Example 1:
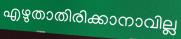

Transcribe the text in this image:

എഴുതാതിരിക്കാനാവില്ല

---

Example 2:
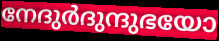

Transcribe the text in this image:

നേദുർദുന്ദുഭയോ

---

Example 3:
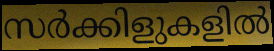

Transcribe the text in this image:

സർക്കിളുകളിൽ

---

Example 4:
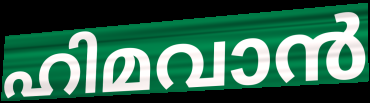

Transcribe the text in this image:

ഹിമവാൻ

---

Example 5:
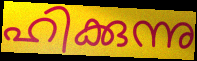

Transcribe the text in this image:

ഹിക്കുന്നു